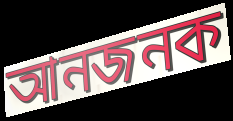
আনজনক